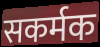
सकर्मक